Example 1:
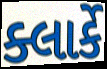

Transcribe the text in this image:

ક્લાર્કે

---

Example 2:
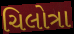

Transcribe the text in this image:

ચિલોત્રા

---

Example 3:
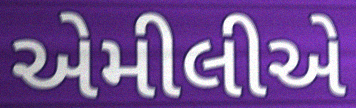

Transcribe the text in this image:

એમીલીએ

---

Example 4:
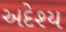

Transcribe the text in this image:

અદેશ્ય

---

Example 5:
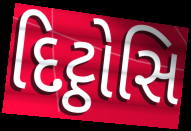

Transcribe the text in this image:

દિટ્ઠોસિ